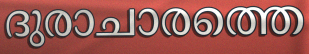
ദുരാചാരത്തെ